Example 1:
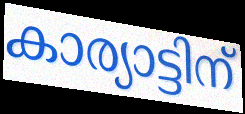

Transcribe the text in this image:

കാര്യാട്ടിന്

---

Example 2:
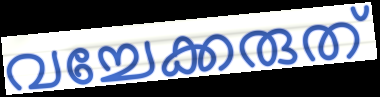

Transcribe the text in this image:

വച്ചേക്കരുത്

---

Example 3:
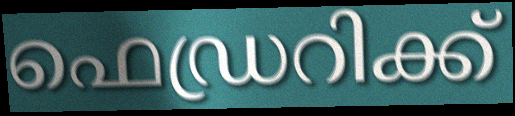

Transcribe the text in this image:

ഫെഡ്രറിക്ക്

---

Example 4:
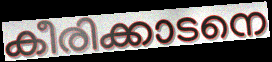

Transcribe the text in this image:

കീരിക്കാടനെ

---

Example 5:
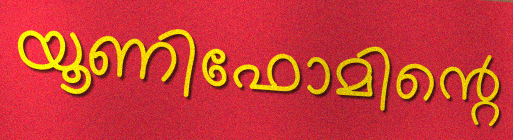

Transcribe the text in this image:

യൂണിഫോമിന്റെ